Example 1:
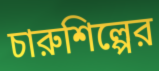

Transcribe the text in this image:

চারুশিল্পের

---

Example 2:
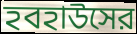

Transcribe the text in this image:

হবহাউসের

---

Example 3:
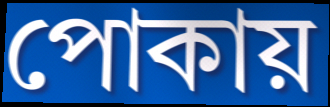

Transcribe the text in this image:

পোকায়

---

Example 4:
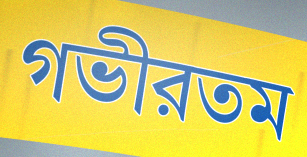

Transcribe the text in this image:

গভীরতম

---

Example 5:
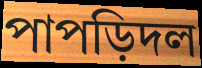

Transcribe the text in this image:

পাপড়িদল